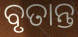
ବୃତାନ୍ତ